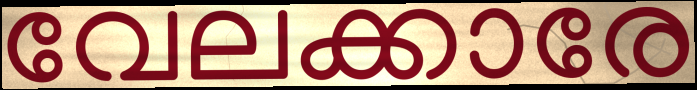
വേലക്കാരേ